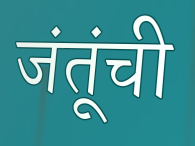
जंतूंची